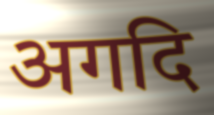
अगदि